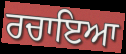
ਰਚਾਇਆ